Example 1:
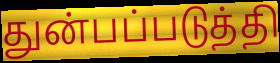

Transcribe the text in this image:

துன்பப்படுத்தி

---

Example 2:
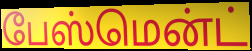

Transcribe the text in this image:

பேஸ்மென்ட்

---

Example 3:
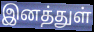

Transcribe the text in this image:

இனத்துள்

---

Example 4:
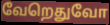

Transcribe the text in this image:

வேறெதுவோ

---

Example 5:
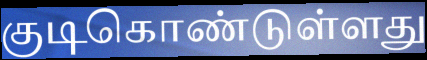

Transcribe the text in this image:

குடிகொண்டுள்ளது